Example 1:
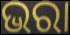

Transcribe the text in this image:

ଭରା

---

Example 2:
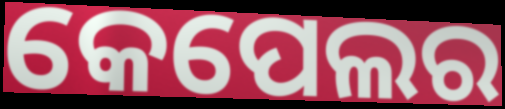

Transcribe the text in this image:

କେପେଲର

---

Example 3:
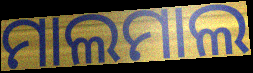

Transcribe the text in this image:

ମାଲମାଲ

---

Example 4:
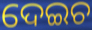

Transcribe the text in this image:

ଦେଇଚ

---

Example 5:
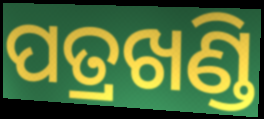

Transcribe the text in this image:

ପତ୍ରଖଣ୍ଡି